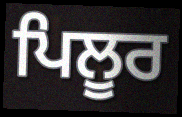
ਪਿਲੂਰ